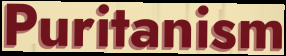
Puritanism